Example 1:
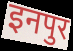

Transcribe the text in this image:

इनपुर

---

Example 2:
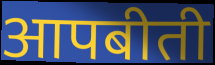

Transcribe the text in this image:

आपबीती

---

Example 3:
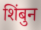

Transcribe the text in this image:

शिंबुन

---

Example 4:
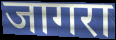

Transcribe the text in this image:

जागरा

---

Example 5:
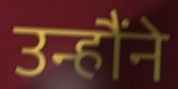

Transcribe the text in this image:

उन्हौंने